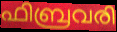
ഫിബ്രവരി